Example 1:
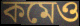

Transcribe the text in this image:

কমেও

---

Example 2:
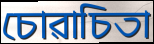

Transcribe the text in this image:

চোৱাচিতা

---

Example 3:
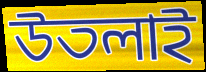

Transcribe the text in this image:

উতলাই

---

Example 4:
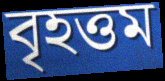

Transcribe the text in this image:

বৃহত্তম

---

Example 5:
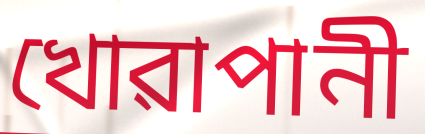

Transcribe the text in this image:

খোৱাপানী